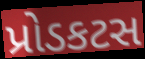
પ્રોડકટસ